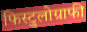
फिस्टुलोग्राफी